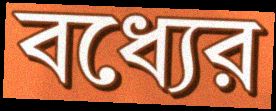
বধ্যের